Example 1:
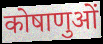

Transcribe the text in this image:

कोषाणुओं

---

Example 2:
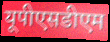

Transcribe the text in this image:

यूपीएसडीएम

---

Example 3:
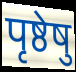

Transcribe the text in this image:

पृष्ठेषु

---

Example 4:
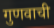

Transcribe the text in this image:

गुणवाची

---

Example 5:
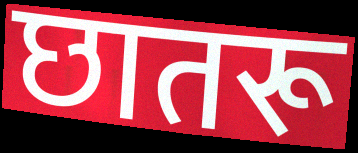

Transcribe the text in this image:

छातरू